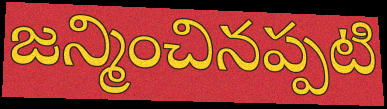
జన్మించినప్పటి